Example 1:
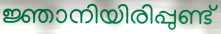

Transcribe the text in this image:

ജ്ഞാനിയിരിപ്പുണ്ട്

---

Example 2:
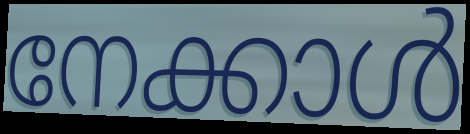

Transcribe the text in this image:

നേക്കാൾ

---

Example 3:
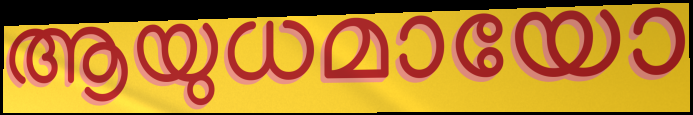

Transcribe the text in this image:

ആയുധമായോ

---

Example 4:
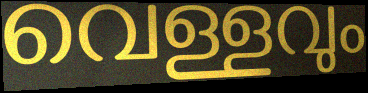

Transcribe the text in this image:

വെള്ളവും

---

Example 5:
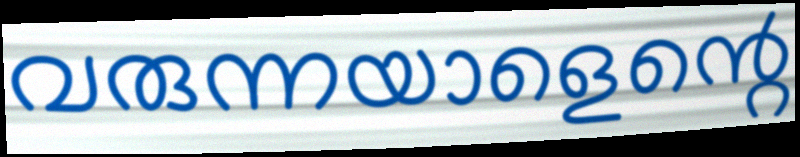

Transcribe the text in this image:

വരുന്നയാളെന്റെ